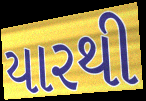
યારથી